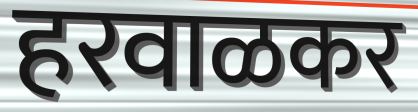
हरवाळकर